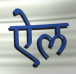
ऐल